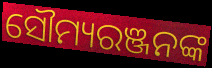
ସୌମ୍ୟରଞ୍ଜନଙ୍କ